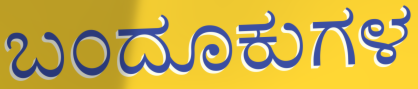
ಬಂದೂಕುಗಳ